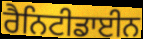
ਰੈਨਿਟੀਡਾਈਨ